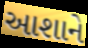
આશાને